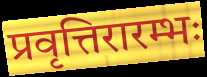
प्रवृत्तिरारम्भः